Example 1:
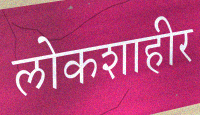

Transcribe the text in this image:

लोकशाहीर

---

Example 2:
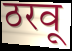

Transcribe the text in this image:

ठरवू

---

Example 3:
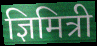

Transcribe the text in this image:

ज्ञिमित्री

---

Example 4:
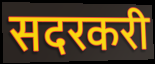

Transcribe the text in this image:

सदरकरी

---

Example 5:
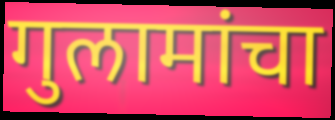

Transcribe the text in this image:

गुलामांचा